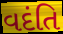
વદંતિ